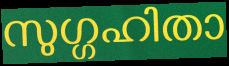
സുഗ്ഗഹിതാ